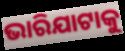
ଭାରିଯାଟାକୁ